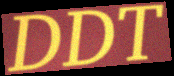
DDT